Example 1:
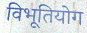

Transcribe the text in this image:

विभूतियोग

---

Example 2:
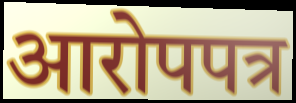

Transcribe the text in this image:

आरोपपत्र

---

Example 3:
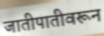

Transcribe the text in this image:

जातीपातीवरून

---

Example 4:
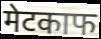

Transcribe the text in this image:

मेटकाफ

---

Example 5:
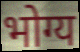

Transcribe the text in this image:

भोग्य